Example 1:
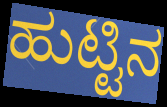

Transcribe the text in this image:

ಹುಟ್ಟಿನ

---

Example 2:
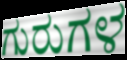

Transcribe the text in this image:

ಗುರುಗಳ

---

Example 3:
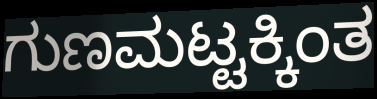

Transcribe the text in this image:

ಗುಣಮಟ್ಟಕ್ಕಿಂತ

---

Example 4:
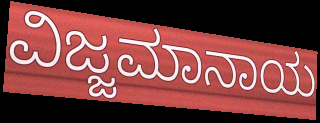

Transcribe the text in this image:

ವಿಜ್ಜಮಾನಾಯ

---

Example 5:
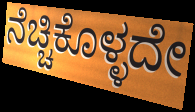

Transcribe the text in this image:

ನೆಚ್ಚಿಕೊಳ್ಳದೇ